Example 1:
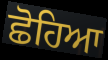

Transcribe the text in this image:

ਛੋਹਿਆ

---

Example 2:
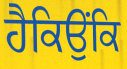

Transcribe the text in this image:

ਹੈਕਿਉਂਕਿ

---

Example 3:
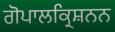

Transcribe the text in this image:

ਗੋਪਾਲਕ੍ਰਿਸ਼ਨਨ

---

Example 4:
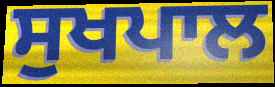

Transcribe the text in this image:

ਸੁਖਪਾਲ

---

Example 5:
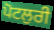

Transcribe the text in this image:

ਪੋਟਲੁਰੀ